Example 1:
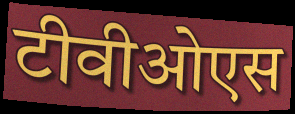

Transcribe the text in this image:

टीवीओएस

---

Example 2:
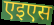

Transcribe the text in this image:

एइएस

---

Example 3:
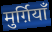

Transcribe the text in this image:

मुर्ग़ियाँ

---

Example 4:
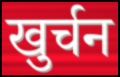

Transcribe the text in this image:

खुर्चन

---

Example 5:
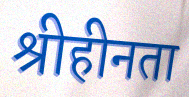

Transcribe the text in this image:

श्रीहीनता